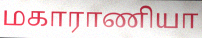
மகாராணியா